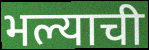
भल्याची